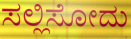
ಸಲ್ಲಿಸೋದು